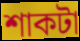
শাকটা